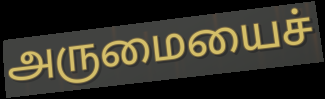
அருமையைச்